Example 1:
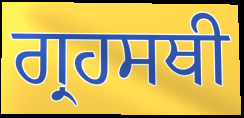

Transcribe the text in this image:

ਗ੍ਰਹਸਥੀ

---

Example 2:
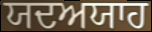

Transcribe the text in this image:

ਯਦਅਯਾਹ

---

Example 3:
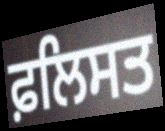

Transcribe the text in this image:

ਫ਼ਲਿਸਤ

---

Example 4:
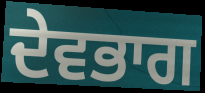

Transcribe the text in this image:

ਦੇਵਭਾਗ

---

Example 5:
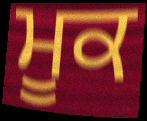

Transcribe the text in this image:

ਮੂਕ